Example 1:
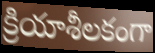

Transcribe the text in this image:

క్రియాశీలకంగా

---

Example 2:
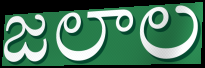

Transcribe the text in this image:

జలాల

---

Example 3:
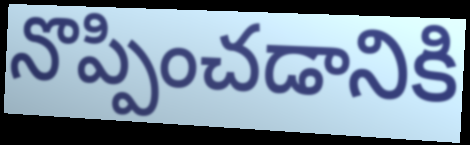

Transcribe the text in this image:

నొప్పించడానికి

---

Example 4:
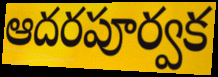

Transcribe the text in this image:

ఆదరపూర్వక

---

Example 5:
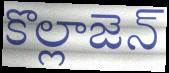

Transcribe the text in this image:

కొల్లాజెన్